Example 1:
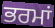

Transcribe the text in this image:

ਭਰਮਾਂ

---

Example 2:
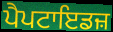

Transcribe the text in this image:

ਪੈਪਟਾਇਡਜ਼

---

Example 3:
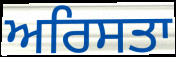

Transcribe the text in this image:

ਅਰਿਸਤਾ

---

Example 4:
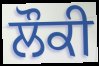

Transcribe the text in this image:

ਲੌਕੀ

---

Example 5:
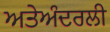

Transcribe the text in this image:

ਅਤੇਅੰਦਰਲੀ